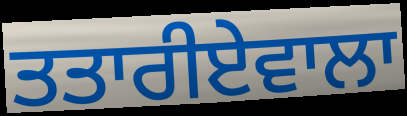
ਤਤਾਰੀਏਵਾਲਾ